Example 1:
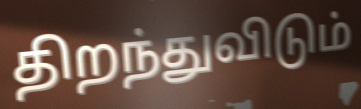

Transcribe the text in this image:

திறந்துவிடும்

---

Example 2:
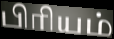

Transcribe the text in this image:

பிரியம்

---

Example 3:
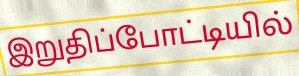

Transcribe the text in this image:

இறுதிப்போட்டியில்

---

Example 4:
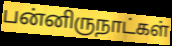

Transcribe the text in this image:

பன்னிருநாட்கள்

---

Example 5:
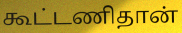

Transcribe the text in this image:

கூட்டணிதான்